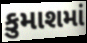
કુમાશમાં